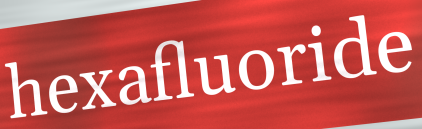
hexafluoride